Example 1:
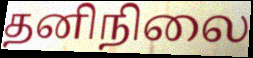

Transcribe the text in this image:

தனிநிலை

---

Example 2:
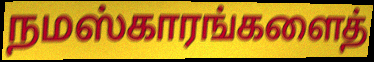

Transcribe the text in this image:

நமஸ்காரங்களைத்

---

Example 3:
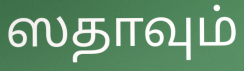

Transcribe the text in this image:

ஸதாவும்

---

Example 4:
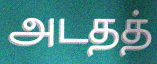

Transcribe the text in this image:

அடதத்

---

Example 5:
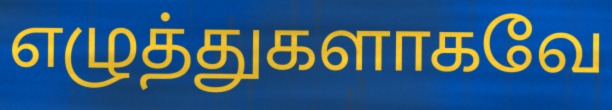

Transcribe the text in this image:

எழுத்துகளாகவே